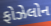
ફોઝેલોન